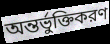
অন্তর্ভুক্তিকরণ